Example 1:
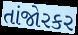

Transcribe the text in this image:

તાંજોરકર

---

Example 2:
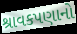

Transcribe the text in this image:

શ્રાવકપણાનો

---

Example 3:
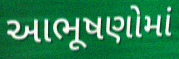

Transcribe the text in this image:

આભૂષણોમાં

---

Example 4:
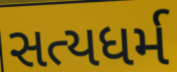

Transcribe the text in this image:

સત્યધર્મ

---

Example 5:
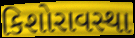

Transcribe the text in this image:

કિશોરાવસ્થા